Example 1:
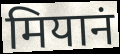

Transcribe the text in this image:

मियानं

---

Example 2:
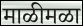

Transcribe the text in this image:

माळीमळा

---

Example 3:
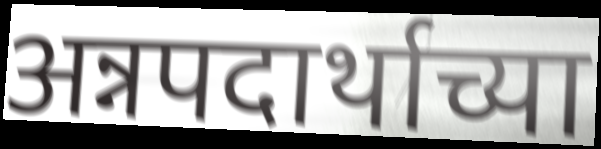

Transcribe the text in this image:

अन्नपदार्थाच्या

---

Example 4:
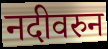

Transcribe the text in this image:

नदीवरुन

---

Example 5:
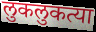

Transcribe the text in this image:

लुकलुकत्या